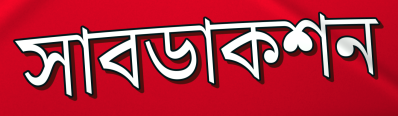
সাবডাকশন